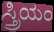
ಸ್ತ್ರಿಯಂ